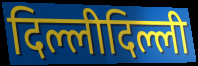
दिल्लीदिल्ली